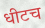
धीटच